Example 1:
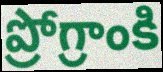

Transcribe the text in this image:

ప్రోగ్రాంకి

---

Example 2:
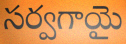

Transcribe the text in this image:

సర్వగాయై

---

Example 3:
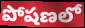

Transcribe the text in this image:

పోషణలో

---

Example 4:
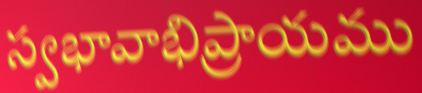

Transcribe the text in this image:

స్వభావాభిప్రాయము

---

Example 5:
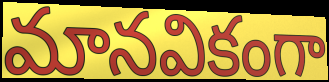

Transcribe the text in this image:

మానవికంగా